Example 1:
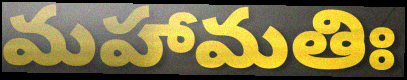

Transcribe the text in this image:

మహామతిః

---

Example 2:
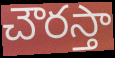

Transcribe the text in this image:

చౌరస్తా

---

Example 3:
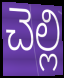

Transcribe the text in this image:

చెల్లి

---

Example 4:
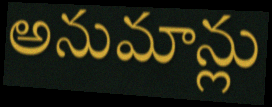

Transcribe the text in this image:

అనుమాన్లు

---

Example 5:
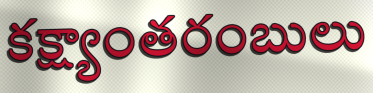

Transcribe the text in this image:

కక్ష్యాంతరంబులు